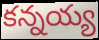
కన్నయ్య